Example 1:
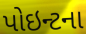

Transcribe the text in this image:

પોઇન્ટના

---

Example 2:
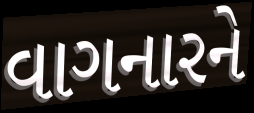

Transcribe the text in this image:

વાગનારને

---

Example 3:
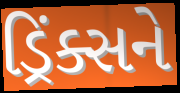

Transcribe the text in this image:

ડ્રિંક્સને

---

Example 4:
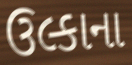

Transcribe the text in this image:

ઉલ્કાના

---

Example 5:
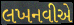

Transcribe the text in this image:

લખનવીએ